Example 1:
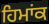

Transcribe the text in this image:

ਹਿਮਾਂਕ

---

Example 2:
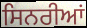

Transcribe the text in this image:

ਸਿਨਰੀਆਂ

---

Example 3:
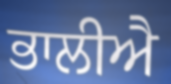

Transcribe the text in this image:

ਭਾਲੀਐ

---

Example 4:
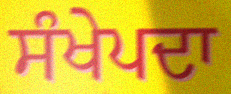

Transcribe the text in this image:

ਸੰਖੇਪਦਾ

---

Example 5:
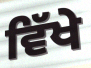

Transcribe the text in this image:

ਵਿੱਖੇ